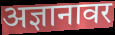
अज्ञानावर